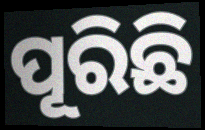
ପୂରିଛି